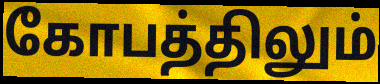
கோபத்திலும்